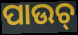
ପାଉଚ୍